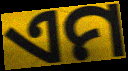
ଏମ